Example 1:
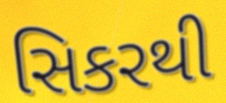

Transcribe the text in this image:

સિકરથી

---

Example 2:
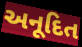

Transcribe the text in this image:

અનૂદિત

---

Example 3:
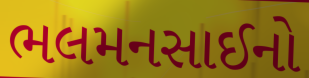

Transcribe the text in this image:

ભલમનસાઈનો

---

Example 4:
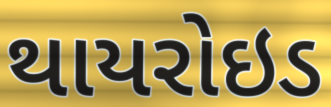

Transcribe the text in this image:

થાયરોઇડ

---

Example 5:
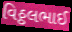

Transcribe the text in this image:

વિઠ્ઠલભાઈ